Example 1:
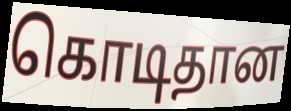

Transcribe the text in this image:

கொடிதான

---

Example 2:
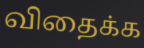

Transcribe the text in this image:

விதைக்க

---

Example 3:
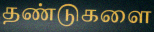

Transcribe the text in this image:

தண்டுகளை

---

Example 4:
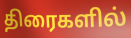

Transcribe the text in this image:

திரைகளில்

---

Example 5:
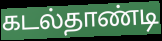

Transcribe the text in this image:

கடல்தாண்டி